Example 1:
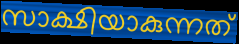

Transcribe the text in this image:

സാക്ഷിയാകുന്നത്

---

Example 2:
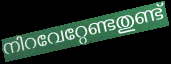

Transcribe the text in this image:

നിറവേറ്റേണ്ടതുണ്ട്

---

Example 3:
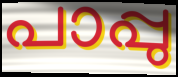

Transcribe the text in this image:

പാപ്പു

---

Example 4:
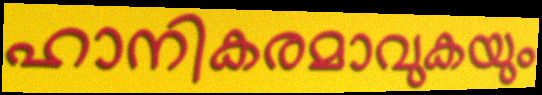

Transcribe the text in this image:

ഹാനികരമാവുകയും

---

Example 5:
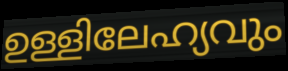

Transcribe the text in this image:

ഉള്ളിലേഹ്യവും